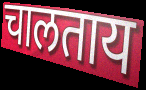
चालताय